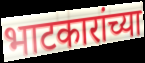
भाटकारांच्या